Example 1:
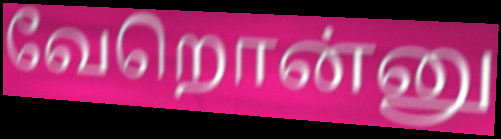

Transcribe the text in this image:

வேறொன்னு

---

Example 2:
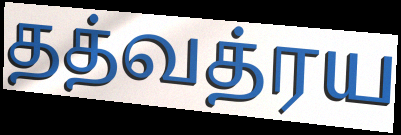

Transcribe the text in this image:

தத்வத்ரய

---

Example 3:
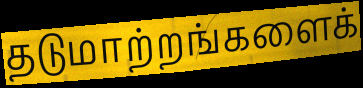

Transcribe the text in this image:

தடுமாற்றங்களைக்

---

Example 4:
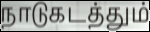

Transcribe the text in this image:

நாடுகடத்தும்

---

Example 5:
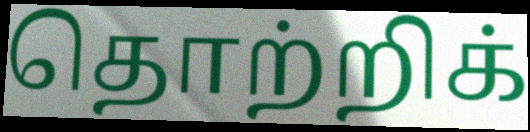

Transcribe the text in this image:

தொற்றிக்